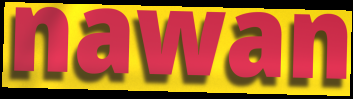
nawan